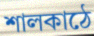
শালকাঠে